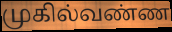
முகில்வண்ண